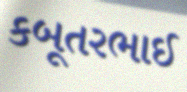
કબૂતરભાઈ